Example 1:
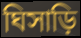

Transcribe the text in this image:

ঘিসাড়ি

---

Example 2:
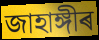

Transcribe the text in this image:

জাহাঙ্গীৰ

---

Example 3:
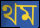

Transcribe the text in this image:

থম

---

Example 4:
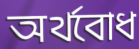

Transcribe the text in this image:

অৰ্থবোধ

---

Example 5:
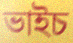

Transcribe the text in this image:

ভাইচ